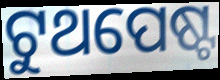
ଟୁଥପେଷ୍ଟ